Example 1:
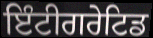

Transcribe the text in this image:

ਇੰਟੀਗਰੇਟਿਡ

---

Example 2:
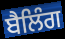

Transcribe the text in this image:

ਬੈਲਿੰਗ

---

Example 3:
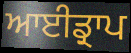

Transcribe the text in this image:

ਆਈਡ੍ਰਾਪ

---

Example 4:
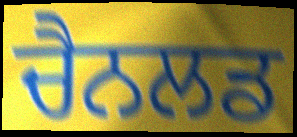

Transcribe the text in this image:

ਚੈਨਲਡ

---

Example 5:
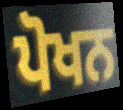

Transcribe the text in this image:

ਪੋਖਨ